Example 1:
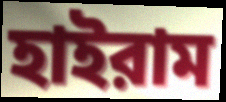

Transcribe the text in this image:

হাইরাম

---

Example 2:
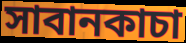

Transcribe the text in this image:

সাবানকাচা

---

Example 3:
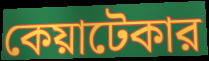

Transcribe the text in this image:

কেয়াটেকার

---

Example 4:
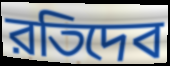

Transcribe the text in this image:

রতিদেব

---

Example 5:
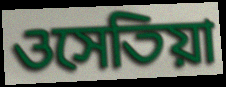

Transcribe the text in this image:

ওসেতিয়া